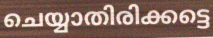
ചെയ്യാതിരിക്കട്ടെ